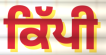
ਕਿੱਪੀ